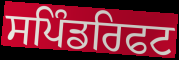
ਸਪਿੰਡਰਿਫਟ